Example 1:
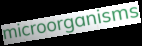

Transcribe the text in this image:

microorganisms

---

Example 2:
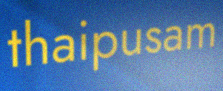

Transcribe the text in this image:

thaipusam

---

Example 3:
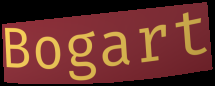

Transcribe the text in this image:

Bogart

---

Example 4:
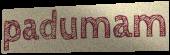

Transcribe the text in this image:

padumam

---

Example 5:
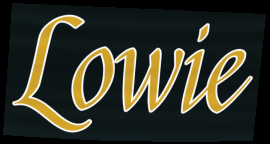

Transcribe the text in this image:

Lowie